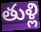
తుళ్లి